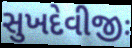
સુખદેવીજીઃ